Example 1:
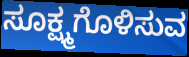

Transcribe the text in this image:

ಸೂಕ್ಷ್ಮಗೊಳಿಸುವ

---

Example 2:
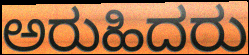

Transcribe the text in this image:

ಅರುಹಿದರು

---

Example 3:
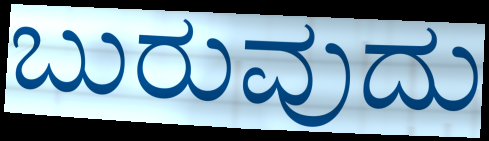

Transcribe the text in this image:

ಬುರುವುದು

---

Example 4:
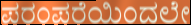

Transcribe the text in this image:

ಪರಂಪರೆಯಿಂದಲೇ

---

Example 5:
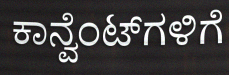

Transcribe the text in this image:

ಕಾನ್ವೆಂಟ್‌ಗಳಿಗೆ